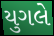
યુગલે